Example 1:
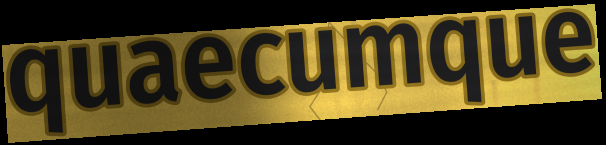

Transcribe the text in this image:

quaecumque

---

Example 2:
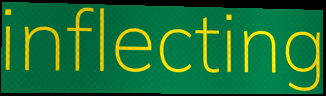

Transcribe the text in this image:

inflecting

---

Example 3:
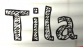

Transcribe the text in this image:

Tila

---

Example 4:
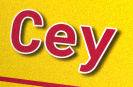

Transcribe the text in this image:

Cey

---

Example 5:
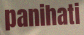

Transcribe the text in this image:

panihati